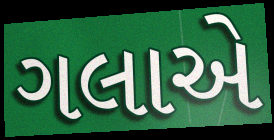
ગલાએ